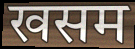
खसम